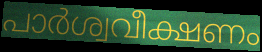
പാർശ്വവീക്ഷണം